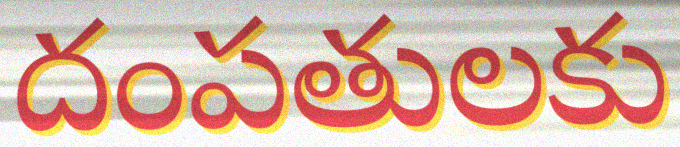
దంపతులకు